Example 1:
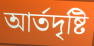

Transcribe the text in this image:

আর্তদৃষ্টি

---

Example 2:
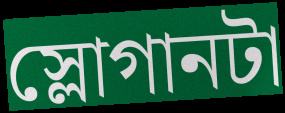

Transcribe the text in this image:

স্লোগানটা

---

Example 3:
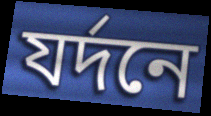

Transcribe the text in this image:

যর্দনে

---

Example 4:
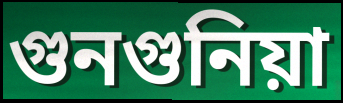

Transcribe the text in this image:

গুনগুনিয়া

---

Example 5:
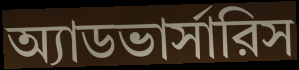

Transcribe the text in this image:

অ্যাডভার্সারিস